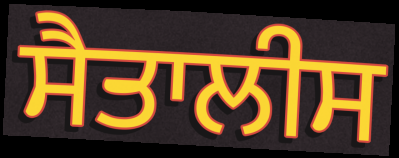
ਸੈਤਾਲੀਸ